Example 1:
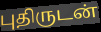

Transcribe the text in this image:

புதிருடன்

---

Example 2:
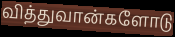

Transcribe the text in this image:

வித்துவான்களோடு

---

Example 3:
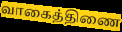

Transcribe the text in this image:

வாகைத்திணை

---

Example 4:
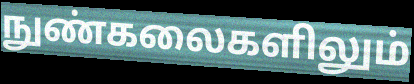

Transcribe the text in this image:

நுண்கலைகளிலும்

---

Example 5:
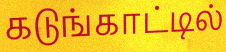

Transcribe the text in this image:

கடுங்காட்டில்